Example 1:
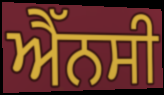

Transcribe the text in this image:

ਐੱਨਸੀ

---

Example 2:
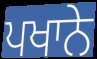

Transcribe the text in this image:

ਪਖਾਨੇ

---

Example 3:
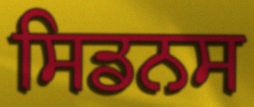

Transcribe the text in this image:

ਸਿਡਨਸ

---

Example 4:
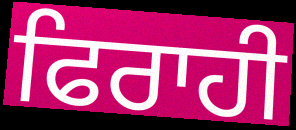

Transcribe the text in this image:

ਫਿਰਾਹੀ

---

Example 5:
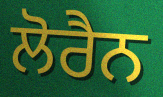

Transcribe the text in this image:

ਲੋਰੈਨ